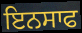
ਇਨਸਾਫ